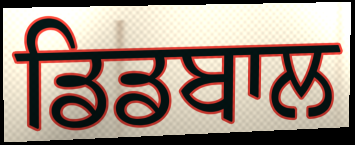
ਡਿਡਬਾਲ